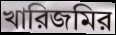
খারিজমির